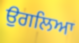
ਉਗਲਿਆ